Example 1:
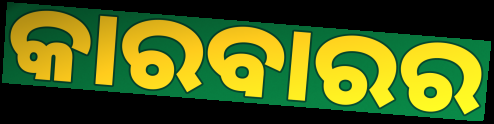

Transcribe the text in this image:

କାରବାରର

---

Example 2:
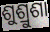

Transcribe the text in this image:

ଶୁଶ୍ରୁଶା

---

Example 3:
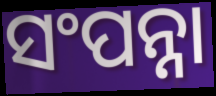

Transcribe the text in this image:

ସଂପନ୍ନା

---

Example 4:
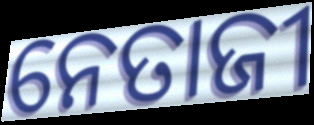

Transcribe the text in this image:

ନେତାଜୀ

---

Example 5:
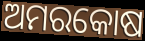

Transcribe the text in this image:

ଅମରକୋଷ